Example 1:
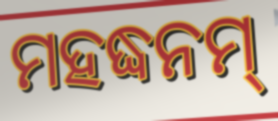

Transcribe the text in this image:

ମହଦ୍ଧନମ୍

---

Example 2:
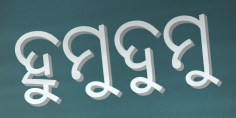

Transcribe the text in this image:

ହୁମୁଦୁମୁ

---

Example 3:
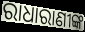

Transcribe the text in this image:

ରାଧାରାଣୀଙ୍କ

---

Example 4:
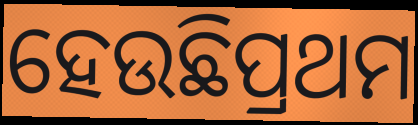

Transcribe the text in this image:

ହେଉଛିପ୍ରଥମ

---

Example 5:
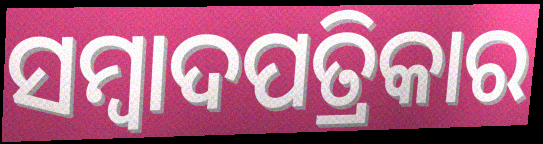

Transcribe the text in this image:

ସମ୍ବାଦପତ୍ରିକାର